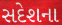
સદેશના